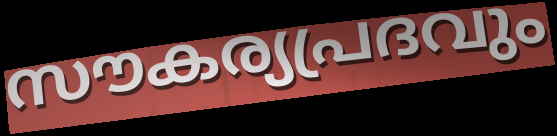
സൗകര്യപ്രദവും